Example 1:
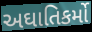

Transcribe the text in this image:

અઘાતિકર્મો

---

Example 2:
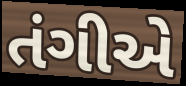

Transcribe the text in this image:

તંગીએ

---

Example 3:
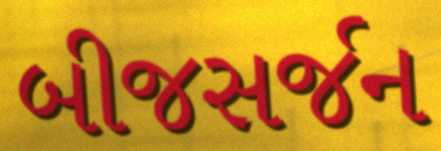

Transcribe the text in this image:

બીજસર્જન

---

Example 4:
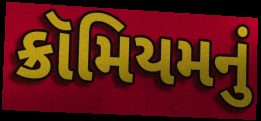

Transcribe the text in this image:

ક્રૉમિયમનું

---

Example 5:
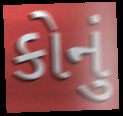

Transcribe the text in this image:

કોનું